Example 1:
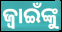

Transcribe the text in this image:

ଜ୍ବାଇଁଙ୍କୁ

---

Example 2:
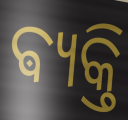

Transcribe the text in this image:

ଵ୍ଯକ୍ତି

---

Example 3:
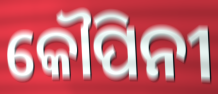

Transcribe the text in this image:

କୌପିନୀ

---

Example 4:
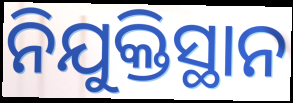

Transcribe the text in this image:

ନିଯୁକ୍ତିସ୍ଥାନ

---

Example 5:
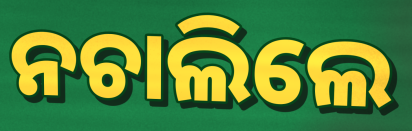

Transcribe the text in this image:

ନଚାଲିଲେ